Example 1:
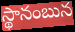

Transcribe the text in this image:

స్థానంబున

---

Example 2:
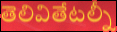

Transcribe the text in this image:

తెలివితేటల్నీ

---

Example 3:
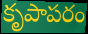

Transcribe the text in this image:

కృపాపరం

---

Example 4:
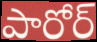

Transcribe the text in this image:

పారోర్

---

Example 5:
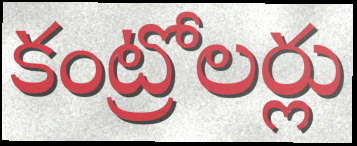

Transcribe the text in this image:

కంట్రోలర్లు